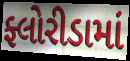
ફ્લોરીડામાં